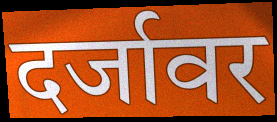
दर्जावर